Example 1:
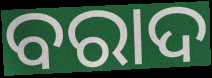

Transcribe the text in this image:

ବରାଦ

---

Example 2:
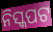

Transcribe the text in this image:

ନିସ୍କପଟ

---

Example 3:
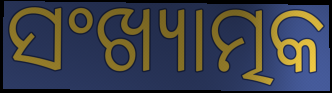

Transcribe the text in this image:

ସଂଖ୍ୟାତ୍ମକ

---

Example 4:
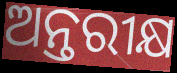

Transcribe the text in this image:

ଅନ୍ତରୀକ୍ଷ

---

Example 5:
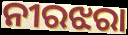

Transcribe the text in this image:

ନୀରଝରା